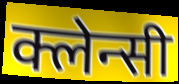
क्लेन्सी